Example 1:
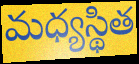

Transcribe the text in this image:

మధ్యస్థిత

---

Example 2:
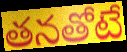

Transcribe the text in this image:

తనతోటే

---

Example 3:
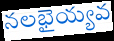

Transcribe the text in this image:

నలభైయ్యవ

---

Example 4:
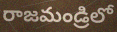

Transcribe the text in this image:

రాజమండ్రిలో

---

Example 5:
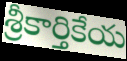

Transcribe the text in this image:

శ్రీకార్తికేయ